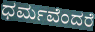
ಧರ್ಮವೆಂದರೆ